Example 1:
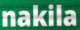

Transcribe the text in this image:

nakila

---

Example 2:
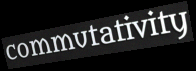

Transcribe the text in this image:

commutativity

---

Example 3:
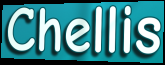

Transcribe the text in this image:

Chellis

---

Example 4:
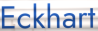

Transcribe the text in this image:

Eckhart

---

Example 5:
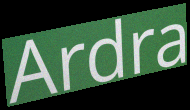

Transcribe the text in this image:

Ardra